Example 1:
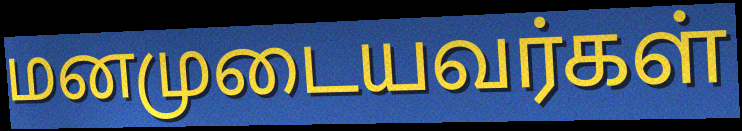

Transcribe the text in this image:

மனமுடையவர்கள்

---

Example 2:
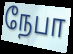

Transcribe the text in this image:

நேபா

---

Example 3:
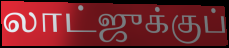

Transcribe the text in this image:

லாட்ஜுக்குப்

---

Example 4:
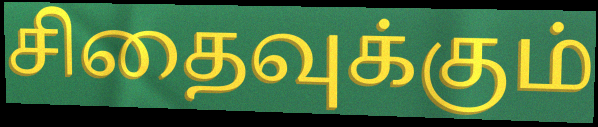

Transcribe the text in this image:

சிதைவுக்கும்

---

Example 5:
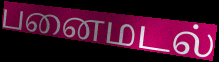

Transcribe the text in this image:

பனைமடல்